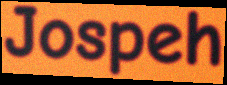
Jospeh